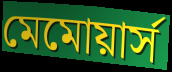
মেমোয়ার্স